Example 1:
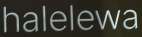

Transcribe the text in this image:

halelewa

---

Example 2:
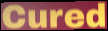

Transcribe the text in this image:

Cured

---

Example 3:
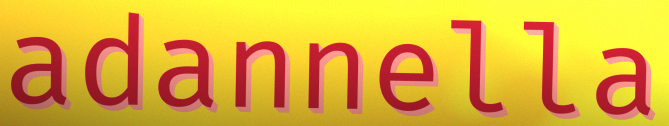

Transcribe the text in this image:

adannella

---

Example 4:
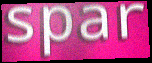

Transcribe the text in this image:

spar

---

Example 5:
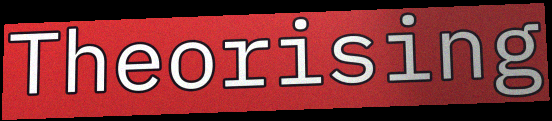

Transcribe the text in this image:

Theorising